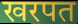
खरपत